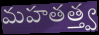
మహతత్త్వ